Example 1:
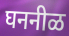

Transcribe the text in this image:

घननीळ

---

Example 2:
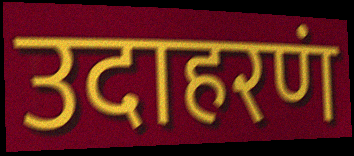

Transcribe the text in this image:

उदाहरणं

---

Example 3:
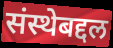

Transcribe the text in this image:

संस्थेबद्दल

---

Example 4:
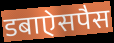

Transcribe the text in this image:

डबाऐसपैस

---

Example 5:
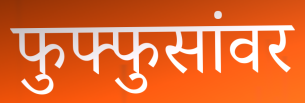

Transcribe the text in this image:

फुफ्फुसांवर